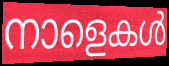
നാളെകൾ